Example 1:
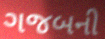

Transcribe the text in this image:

ગજબની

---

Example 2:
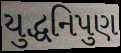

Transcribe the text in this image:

યુદ્ધનિપુણ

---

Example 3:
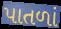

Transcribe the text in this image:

પાતળાં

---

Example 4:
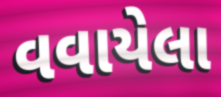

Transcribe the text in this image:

વવાયેલા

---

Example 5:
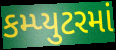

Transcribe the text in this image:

કમ્પ્યુટરમાં